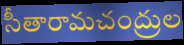
సీతారామచంద్రుల